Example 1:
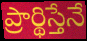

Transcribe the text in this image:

ప్రార్థిస్తేనే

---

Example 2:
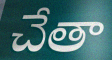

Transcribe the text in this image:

చేతా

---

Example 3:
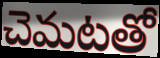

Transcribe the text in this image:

చెమటతో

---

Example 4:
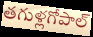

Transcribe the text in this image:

తగుళ్లగోపాల్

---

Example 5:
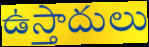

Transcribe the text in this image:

ఉస్తాదులు